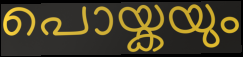
പൊയ്കയും